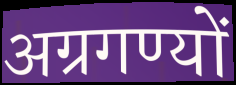
अग्रगण्यों